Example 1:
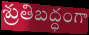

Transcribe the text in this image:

శ్రుతిబద్ధంగా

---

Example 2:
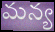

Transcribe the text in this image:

మన్య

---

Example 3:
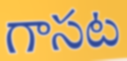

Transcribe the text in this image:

గాసట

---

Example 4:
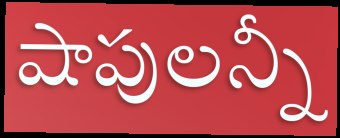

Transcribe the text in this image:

షాపులన్నీ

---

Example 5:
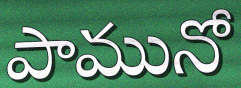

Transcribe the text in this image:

పామునో